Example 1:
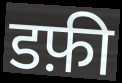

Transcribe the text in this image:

डफ़ी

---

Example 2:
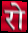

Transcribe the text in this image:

रो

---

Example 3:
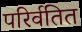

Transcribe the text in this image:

परिर्वतित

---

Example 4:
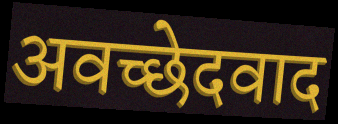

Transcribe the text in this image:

अवच्छेदवाद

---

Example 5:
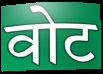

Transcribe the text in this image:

वोट